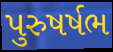
પુરુષર્ષભ